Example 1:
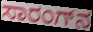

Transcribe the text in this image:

ಸಾರಂಗ್‌ನ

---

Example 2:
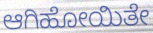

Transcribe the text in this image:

ಆಗಿಹೋಯಿತೇ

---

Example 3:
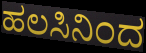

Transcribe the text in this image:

ಹಲಸಿನಿಂದ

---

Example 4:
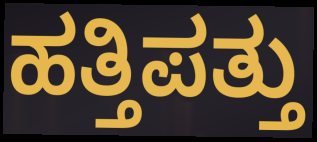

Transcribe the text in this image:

ಹತ್ತಿಪತ್ತು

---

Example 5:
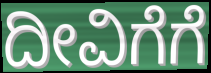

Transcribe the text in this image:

ದೀವಿಗೆಗೆ